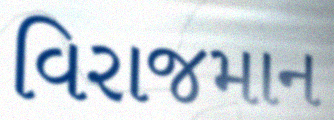
વિરાજમાન